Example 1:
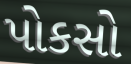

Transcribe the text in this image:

પોકસો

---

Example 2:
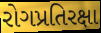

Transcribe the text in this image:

રોગપ્રતિરક્ષા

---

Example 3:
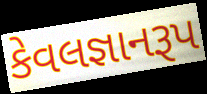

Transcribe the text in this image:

કેવલજ્ઞાનરૂપ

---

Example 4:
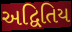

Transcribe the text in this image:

અદ્વિતિય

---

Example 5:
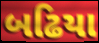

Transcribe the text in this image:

બઢિયા